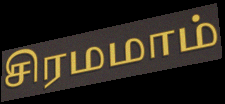
சிரமமாம்